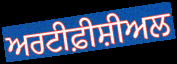
ਅਰਟੀਫ਼ੀਸ਼ੀਅਲ